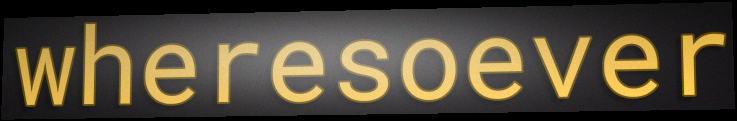
wheresoever